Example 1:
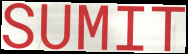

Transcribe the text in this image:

SUMIT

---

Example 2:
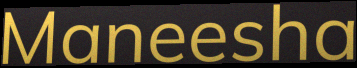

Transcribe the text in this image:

Maneesha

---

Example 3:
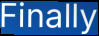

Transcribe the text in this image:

Finally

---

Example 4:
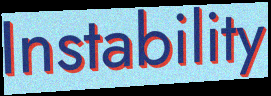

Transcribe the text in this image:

Instability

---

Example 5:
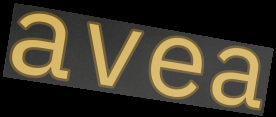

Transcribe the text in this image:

avea